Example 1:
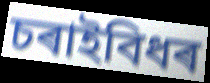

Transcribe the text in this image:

চৰাইবিধৰ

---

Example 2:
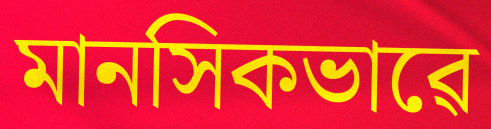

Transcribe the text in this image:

মানসিকভাৱে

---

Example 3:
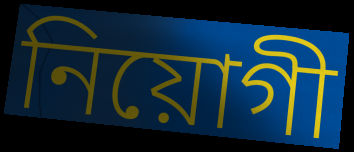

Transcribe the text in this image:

নিয়োগী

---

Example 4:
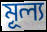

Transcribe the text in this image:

মূল্য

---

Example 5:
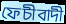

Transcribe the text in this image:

ফেচীবাদী